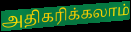
அதிகரிக்கலாம்